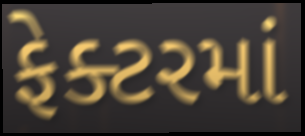
ફેક્ટરમાં